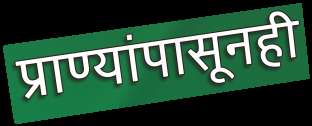
प्राण्यांपासूनही